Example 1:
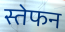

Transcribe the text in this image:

स्तेफन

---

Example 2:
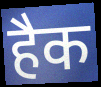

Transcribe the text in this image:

हैक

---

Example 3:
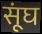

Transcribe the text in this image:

सूंघ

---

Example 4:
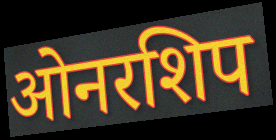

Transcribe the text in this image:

ओनरशिप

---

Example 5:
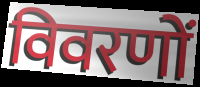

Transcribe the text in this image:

विवरणों